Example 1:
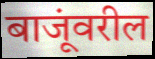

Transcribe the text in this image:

बाजूंवरील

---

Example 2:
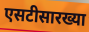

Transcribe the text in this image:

एसटीसारख्या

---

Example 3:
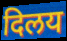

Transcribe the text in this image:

दिलय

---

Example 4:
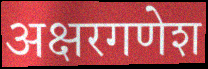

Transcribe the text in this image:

अक्षरगणेश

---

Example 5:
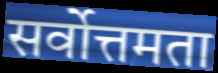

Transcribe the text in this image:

सर्वोत्तमता